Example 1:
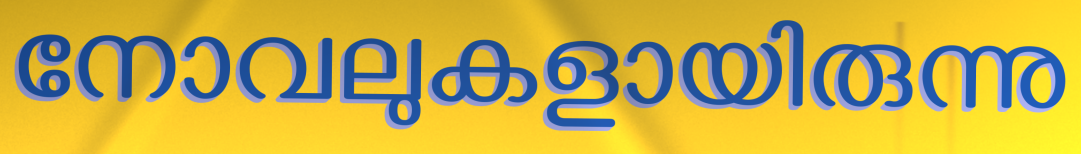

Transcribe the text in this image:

നോവലുകളായിരുന്നു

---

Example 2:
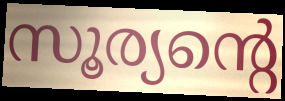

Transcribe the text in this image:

സൂര്യന്റെ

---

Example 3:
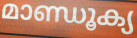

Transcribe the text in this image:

മാണ്ഡൂക്യ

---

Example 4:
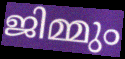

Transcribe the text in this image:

ജിമ്മും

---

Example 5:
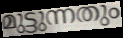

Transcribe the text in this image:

മുട്ടുന്നതും